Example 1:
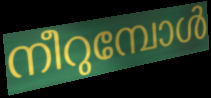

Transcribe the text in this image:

നീറുമ്പോൾ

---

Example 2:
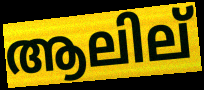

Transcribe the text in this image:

ആലില്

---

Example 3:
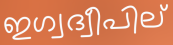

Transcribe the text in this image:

ഇഗ്വദ്വീപില്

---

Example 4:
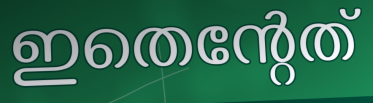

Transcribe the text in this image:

ഇതെന്റേത്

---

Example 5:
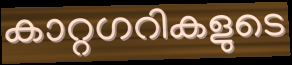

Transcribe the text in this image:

കാറ്റഗറികളുടെ